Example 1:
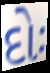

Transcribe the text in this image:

દોઃ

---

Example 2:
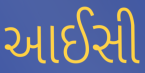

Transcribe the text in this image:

આઈસી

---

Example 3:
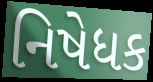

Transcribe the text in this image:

નિષેધક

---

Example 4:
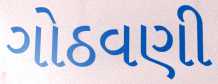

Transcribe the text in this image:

ગોઠવણી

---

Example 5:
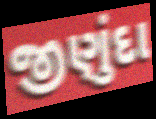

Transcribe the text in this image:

જીણુંદા